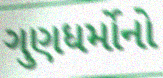
ગુણધર્મોનો